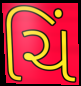
ચિં